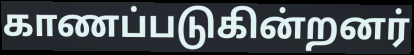
காணப்படுகின்றனர்